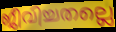
ജീവിച്ചതല്ലെ